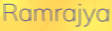
Ramrajya